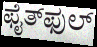
ಫೈತ್‌ಫುಲ್